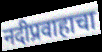
नदीप्रवाहाचा